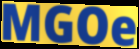
MGOe